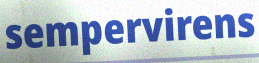
sempervirens